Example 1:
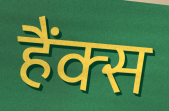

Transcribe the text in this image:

हैंक्‍स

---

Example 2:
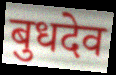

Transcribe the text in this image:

बुधदेव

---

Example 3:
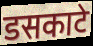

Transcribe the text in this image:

डसकाटे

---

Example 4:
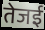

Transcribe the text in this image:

तेजई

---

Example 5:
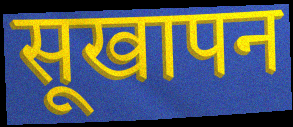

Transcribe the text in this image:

सूखापन